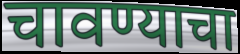
चावण्याचा